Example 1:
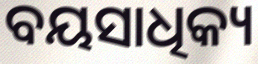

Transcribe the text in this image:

ବୟସାଧିକ୍ୟ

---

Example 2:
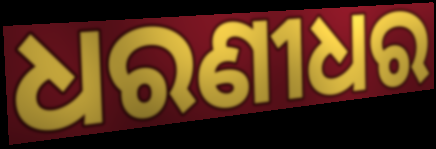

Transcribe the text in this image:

ଧରଣୀଧର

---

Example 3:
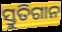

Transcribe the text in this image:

ସ୍ତୁତିଗାନ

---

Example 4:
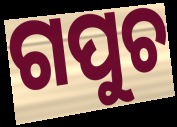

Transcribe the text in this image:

ଗପୁଚ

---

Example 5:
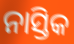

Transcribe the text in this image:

ନାସ୍ତିକ